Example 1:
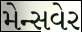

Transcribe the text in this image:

મેન્સવેર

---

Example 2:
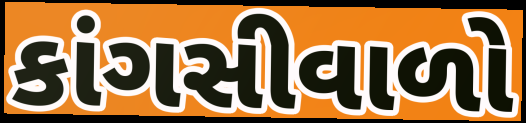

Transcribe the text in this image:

કાંગસીવાળો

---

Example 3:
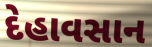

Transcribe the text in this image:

દેહાવસાન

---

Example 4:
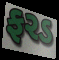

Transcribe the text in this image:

ફરડ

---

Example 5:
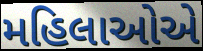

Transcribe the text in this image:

મહિલાઓએ